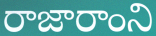
రాజారాంని